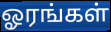
ஓரங்கள்